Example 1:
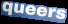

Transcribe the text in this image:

queers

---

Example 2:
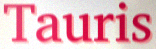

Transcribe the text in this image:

Tauris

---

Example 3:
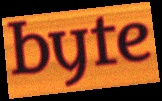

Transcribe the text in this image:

byte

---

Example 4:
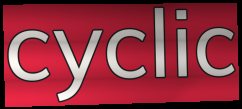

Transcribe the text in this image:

cyclic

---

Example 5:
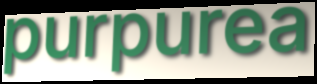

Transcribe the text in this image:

purpurea